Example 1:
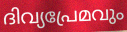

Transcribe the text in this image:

ദിവ്യപ്രേമവും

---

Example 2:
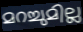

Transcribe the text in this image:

മറച്ചുമില്ല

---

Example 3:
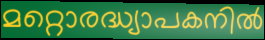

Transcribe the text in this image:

മറ്റൊരദ്ധ്യാപകനിൽ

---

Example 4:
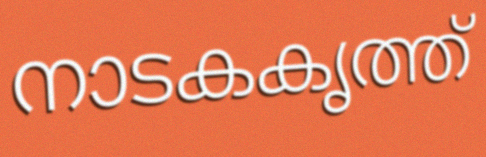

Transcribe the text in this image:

നാടകകൃത്ത്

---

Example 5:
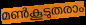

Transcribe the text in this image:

മൺകൂടുതരാം